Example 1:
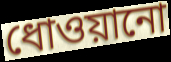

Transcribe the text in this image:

ধোওয়ানো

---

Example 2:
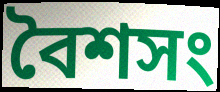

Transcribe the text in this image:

বৈশসং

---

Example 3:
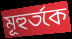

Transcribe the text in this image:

মূহুর্তকে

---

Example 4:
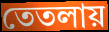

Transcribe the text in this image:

তেতলায়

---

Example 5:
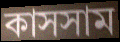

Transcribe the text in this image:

কাসসাম